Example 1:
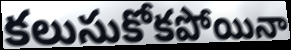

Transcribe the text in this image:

కలుసుకోకపోయినా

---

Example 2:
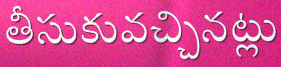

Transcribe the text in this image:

తీసుకువచ్చినట్లు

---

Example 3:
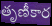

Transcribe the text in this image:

తృణీకార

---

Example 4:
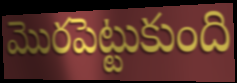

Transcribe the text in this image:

మొరపెట్టుకుంది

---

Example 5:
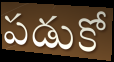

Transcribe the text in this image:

పడుకో